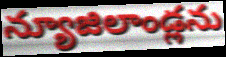
న్యూజిలాండ్లను